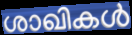
ശാഖികൾ